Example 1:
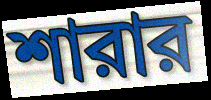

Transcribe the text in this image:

শারার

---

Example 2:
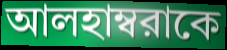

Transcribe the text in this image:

আলহাম্বরাকে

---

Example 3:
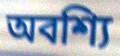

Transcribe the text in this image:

অবশ্যি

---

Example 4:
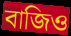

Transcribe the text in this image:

বাজিও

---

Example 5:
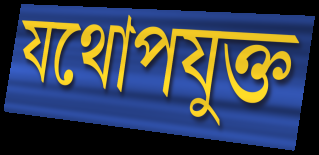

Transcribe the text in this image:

যথোপযুক্ত